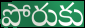
పోరుకు